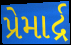
પ્રેમાર્દ્ર